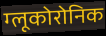
ग्लूकोरोनिक